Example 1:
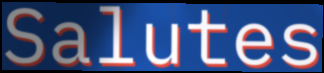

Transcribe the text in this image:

Salutes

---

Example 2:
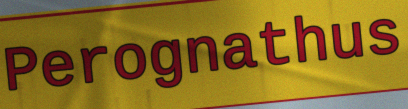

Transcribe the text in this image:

Perognathus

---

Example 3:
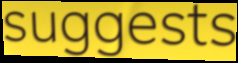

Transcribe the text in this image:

suggests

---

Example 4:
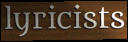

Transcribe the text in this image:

lyricists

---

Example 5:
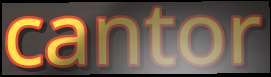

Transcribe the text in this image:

cantor